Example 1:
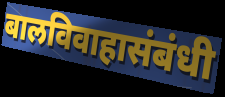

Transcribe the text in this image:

बालविवाहासंबंधी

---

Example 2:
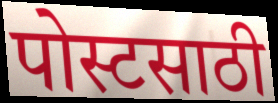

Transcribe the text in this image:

पोस्टसाठी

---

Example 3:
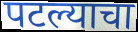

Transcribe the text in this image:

पटल्याचा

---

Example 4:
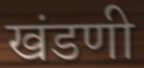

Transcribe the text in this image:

खंडणी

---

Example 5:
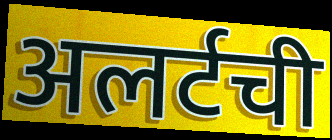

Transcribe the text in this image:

अलर्टची